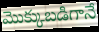
మొక్కుబడిగానే